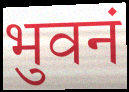
भुवनं